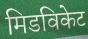
मिडविकेट